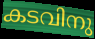
കടവിനു